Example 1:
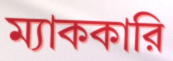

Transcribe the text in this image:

ম্যাককারি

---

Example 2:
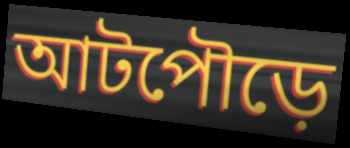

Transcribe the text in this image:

আটপৌড়ে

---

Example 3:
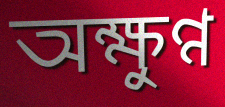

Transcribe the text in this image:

অক্ষুণ্ণ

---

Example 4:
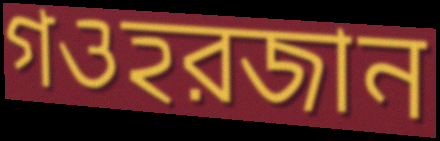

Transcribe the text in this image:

গওহরজান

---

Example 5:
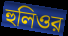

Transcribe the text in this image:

হুলিওর